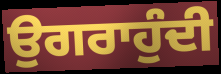
ਉਗਰਾਹੁੰਦੀ